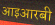
आइआरबी